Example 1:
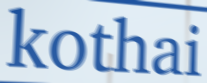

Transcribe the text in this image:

kothai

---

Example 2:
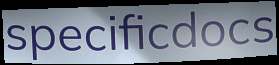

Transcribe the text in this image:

specificdocs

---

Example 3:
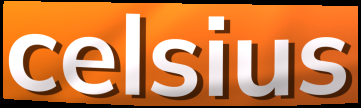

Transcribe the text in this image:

celsius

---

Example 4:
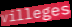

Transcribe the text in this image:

villeges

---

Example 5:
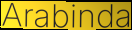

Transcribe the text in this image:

Arabinda